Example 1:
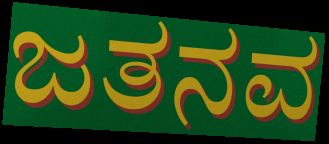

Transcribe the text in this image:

ಜತನವ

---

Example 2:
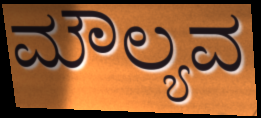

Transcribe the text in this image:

ಮೌಲ್ಯವ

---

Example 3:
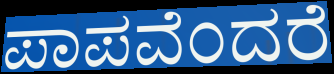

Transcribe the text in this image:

ಪಾಪವೆಂದರೆ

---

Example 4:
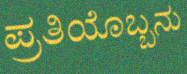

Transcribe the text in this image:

ಪ್ರತಿಯೊಬ್ಬನು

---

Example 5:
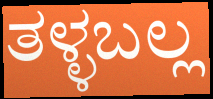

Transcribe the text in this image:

ತಳ್ಳಬಲ್ಲ